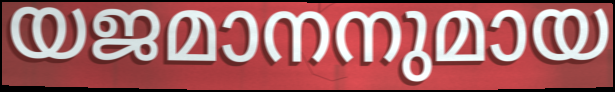
യജമാനനുമായ